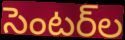
సెంటర్‌ల